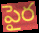
పైర